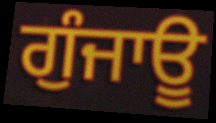
ਗੁੰਜਾਊ